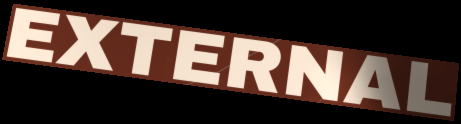
EXTERNAL